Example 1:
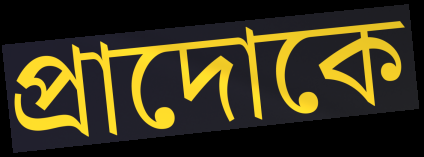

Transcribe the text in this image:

প্রাদোকে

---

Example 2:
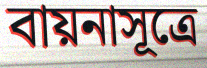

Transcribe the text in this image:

বায়নাসূত্রে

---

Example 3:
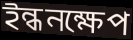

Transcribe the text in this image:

ইন্ধনক্ষেপ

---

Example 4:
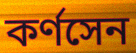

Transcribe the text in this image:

কর্ণসেন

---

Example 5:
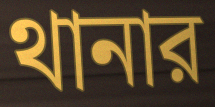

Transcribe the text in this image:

থানার